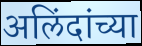
अलिंदांच्या